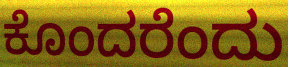
ಕೊಂದರೆಂದು